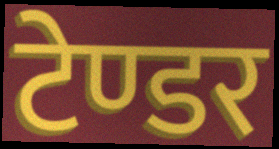
टेण्‍डर